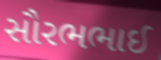
સૌરભભાઈ